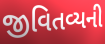
જીવિતવ્યની